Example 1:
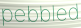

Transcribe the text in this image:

pebbled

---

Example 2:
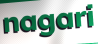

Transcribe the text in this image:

nagari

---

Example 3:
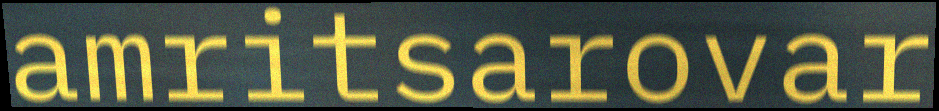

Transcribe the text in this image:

amritsarovar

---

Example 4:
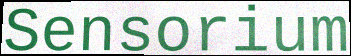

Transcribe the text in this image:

Sensorium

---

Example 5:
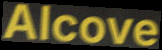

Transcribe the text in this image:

Alcove